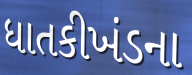
ધાતકીખંડના